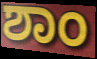
ಶಾಂ